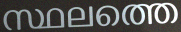
സ്ഥലത്തെ